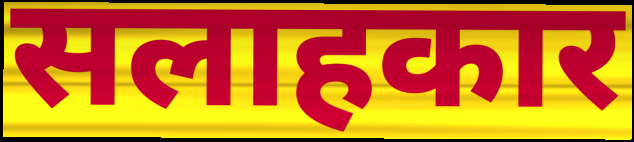
सलाहकार